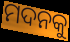
ମଦନକୁ